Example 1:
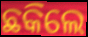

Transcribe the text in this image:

ଛକିଲେ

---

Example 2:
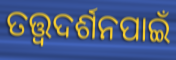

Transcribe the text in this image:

ତତ୍ତ୍ଵଦର୍ଶନପାଇଁ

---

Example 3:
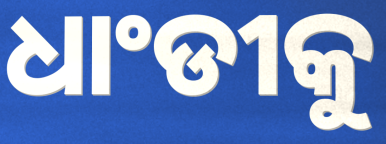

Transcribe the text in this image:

ଧାଂଡୀକୁ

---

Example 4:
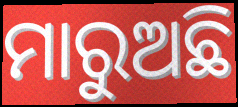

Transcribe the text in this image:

ମାରୁଅଛି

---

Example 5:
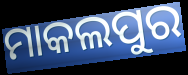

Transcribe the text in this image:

ମାକଲପୁର